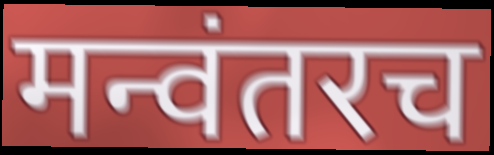
मन्वंतरच